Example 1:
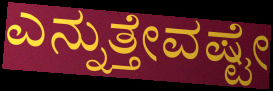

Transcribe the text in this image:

ಎನ್ನುತ್ತೇವಷ್ಟೇ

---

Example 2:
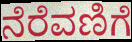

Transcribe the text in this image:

ನೆರೆವಣಿಗೆ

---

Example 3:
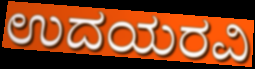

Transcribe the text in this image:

ಉದಯರವಿ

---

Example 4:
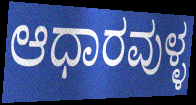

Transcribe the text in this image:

ಆಧಾರವುಳ್ಳ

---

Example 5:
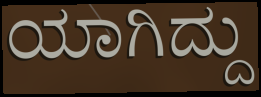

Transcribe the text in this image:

ಯಾಗಿದ್ದು